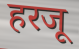
हरजू